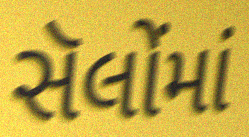
સૅલોંમાં